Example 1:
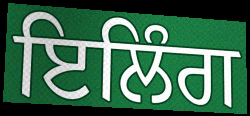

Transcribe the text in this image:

ਇਲਿੰਗ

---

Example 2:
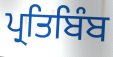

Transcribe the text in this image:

ਪ੍ਰਤਿਬਿੰਬ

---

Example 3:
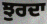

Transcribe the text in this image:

ਝੁਰਦਾ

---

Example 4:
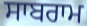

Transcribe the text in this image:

ਸਾਬਰਾਮ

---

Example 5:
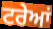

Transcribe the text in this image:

ਟਰੇਆਂ